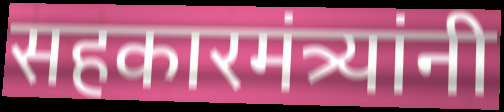
सहकारमंत्र्यांनी